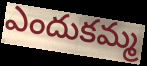
ఎందుకమ్మ